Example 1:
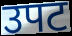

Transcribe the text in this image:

उपट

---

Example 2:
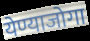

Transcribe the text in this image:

येण्याजोगा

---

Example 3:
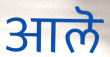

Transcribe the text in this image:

आलॆ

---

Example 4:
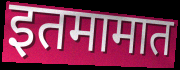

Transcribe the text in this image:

इतमामात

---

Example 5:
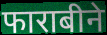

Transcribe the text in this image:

फाराबीने